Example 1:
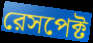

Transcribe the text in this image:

রেসপেক্ট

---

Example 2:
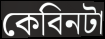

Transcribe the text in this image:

কেবিনটা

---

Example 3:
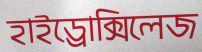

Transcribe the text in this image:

হাইড্রোক্সিলেজ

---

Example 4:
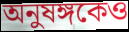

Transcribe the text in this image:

অনুষঙ্গকেও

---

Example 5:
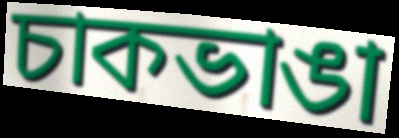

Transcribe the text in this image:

চাকভাঙা